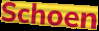
Schoen